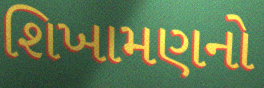
શિખામણનો